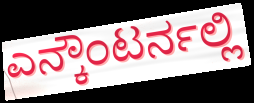
ಎನ್ಕೌಂಟರ್ನಲ್ಲಿ